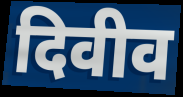
दिवीव